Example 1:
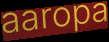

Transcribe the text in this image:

aaropa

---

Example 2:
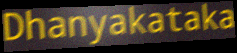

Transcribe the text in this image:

Dhanyakataka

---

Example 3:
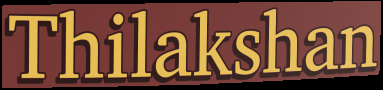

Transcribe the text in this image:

Thilakshan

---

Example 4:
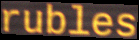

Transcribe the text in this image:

rubles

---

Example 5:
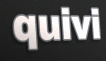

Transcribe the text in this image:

quivi